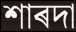
শাৰদা